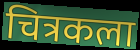
चित्रकला